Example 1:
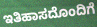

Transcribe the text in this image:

ಇತಿಹಾಸದೊಂದಿಗೆ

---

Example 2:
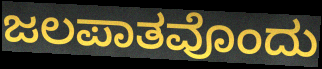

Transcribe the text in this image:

ಜಲಪಾತವೊಂದು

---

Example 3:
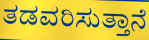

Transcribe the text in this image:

ತಡವರಿಸುತ್ತಾನೆ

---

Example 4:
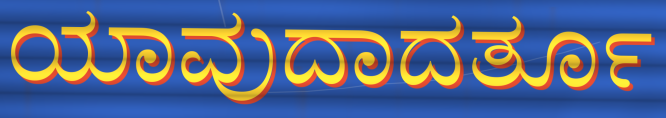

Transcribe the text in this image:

ಯಾವುದಾದರ್ತೂ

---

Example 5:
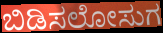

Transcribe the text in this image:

ಬಿಡಿಸಲೋಸುಗ